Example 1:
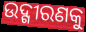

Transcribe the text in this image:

ଉଦ୍ଗୀରଣକୁ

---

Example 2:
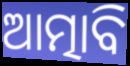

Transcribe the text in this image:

ଆତ୍ମାବି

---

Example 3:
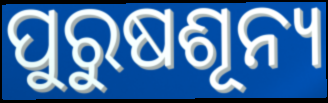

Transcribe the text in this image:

ପୁରୁଷଶୂନ୍ୟ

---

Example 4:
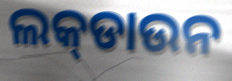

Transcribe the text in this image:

ଲକ୍‌ଡାଉନ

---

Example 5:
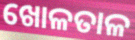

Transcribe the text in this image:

ଖୋଳତାଳ